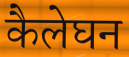
कैलेघन